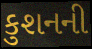
કુશનની